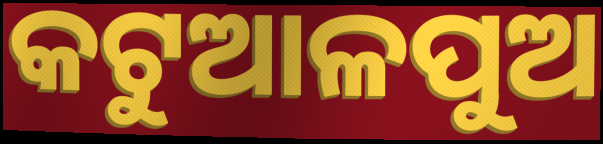
କଟୁଆଳପୁଅ